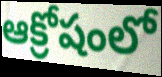
ఆక్రోషంలో